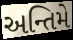
અન્તિમે